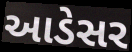
આડેસર